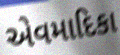
એવમાદિકા